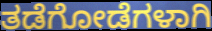
ತಡೆಗೋಡೆಗಳಾಗಿ